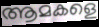
ആമകളെ